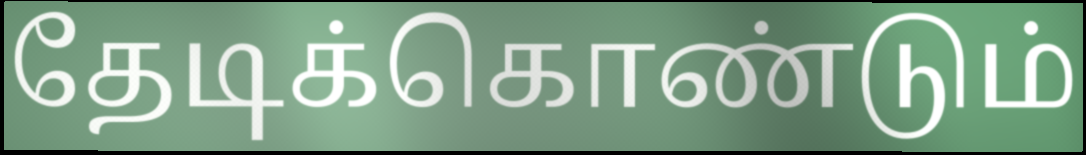
தேடிக்கொண்டும்